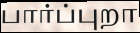
பார்ப்புறா